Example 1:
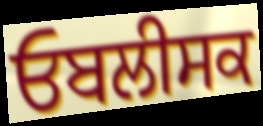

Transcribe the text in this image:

ਓਬਲੀਸਕ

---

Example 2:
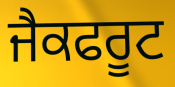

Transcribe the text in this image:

ਜੈਕਫਰੂਟ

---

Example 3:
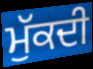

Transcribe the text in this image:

ਮੁੱਕਦੀ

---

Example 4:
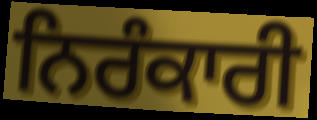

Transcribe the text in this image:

ਨਿਰੰਕਾਰੀ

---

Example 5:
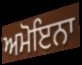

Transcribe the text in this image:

ਅਮੋਇਨਾ